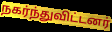
நகர்ந்துவிட்டனர்